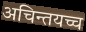
अचिन्तयच्च